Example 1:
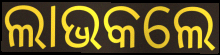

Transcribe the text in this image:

ଲାଭକଲେ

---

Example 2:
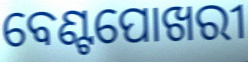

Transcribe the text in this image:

ବେଣ୍ଟପୋଖରୀ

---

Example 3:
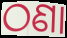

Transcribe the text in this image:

ଠଣା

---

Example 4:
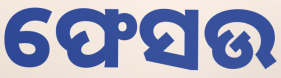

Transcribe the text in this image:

ଫେସଉ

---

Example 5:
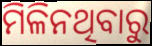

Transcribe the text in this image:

ମିଳିନଥିବାରୁ